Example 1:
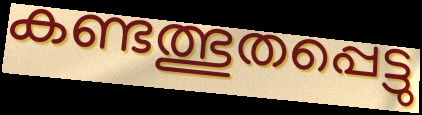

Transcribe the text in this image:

കണ്ടത്ഭുതപ്പെട്ടു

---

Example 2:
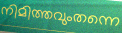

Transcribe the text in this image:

നിമിത്തവുംതന്നെ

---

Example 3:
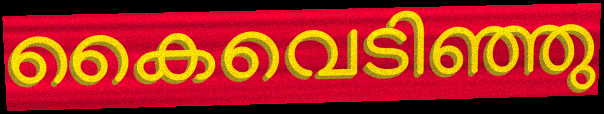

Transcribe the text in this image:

കൈവെടിഞ്ഞു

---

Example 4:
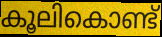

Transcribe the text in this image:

കൂലികൊണ്ട്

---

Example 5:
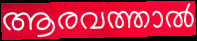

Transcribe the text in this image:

ആരവത്താൽ